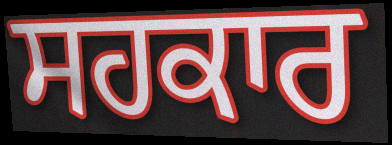
ਸਹਕਾਰ